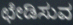
ಛೇಡಿಸುವ